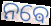
ନଵେ